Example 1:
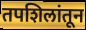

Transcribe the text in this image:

तपशिलांतून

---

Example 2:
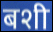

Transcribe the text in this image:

बशी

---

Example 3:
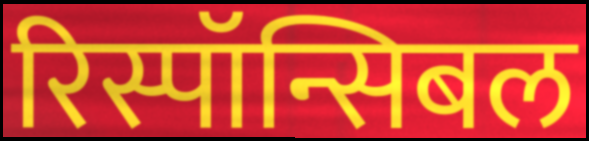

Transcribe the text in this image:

रिस्पॉन्सिबल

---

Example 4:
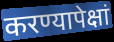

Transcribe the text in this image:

करण्यापेक्षां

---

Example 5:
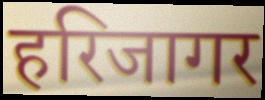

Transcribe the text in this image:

हरिजागर